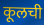
कूलची